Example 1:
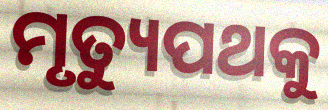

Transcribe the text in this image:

ମୃତ୍ୟୁପଥକୁ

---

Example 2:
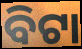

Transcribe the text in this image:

ବିଟା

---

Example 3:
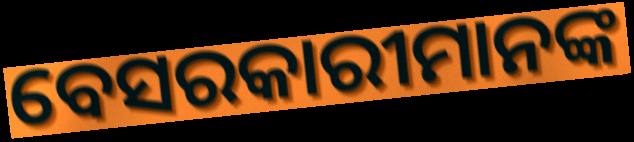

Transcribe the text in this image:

ବେସରକାରୀମାନଙ୍କ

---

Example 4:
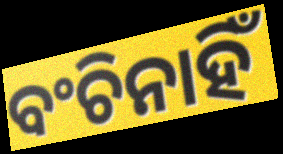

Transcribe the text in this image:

ବଂଚିନାହିଁ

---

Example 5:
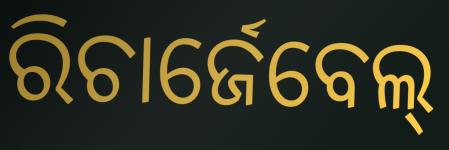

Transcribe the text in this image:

ରିଚାର୍ଜେବେଲ୍